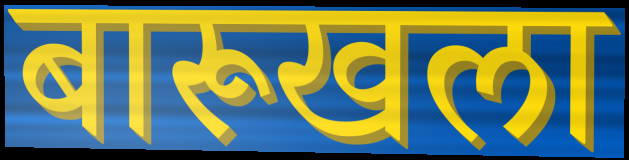
बारूखला